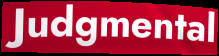
Judgmental